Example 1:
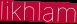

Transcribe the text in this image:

likhlam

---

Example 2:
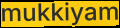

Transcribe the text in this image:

mukkiyam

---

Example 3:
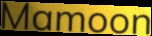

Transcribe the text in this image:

Mamoon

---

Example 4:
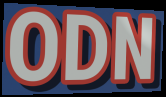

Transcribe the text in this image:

ODN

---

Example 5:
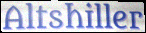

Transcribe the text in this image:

Altshiller